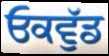
ਓਕਵੁੱਡ